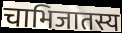
चाभिजातस्य